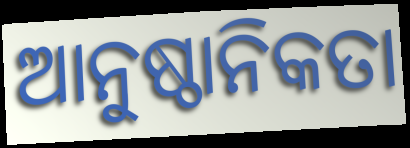
ଆନୁଷ୍ଠାନିକତା